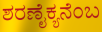
ಶರಣೈಕ್ಯನೆಂಬ